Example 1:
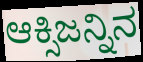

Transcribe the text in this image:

ಆಕ್ಸಿಜನ್ನಿನ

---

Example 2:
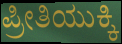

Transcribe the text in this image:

ಪ್ರೀತಿಯುಕ್ಕಿ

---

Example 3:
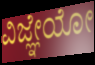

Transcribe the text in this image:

ವಿಜ್ಞೇಯೋ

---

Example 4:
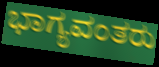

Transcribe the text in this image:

ಭಾಗ್ಯವಂತರು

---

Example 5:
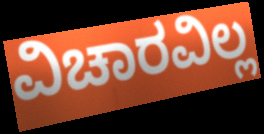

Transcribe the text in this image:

ವಿಚಾರವಿಲ್ಲ